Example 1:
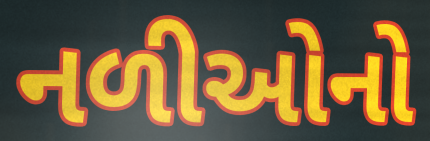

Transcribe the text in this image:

નળીઓનો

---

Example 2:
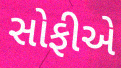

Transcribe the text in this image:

સોફીએ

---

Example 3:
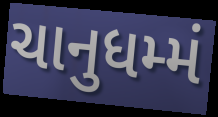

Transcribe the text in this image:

ચાનુધમ્મં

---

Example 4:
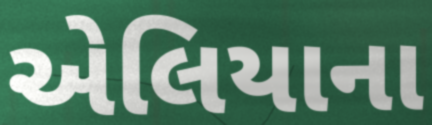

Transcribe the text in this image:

એલિયાના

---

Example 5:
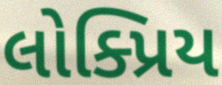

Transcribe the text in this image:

લોક્પ્રિય